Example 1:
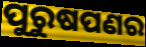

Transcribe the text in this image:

ପୁରୁଷପଣର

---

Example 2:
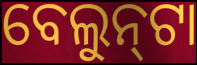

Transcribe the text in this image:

ବେଲୁନ୍‌ଟା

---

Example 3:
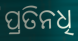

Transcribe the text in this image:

ପ୍ରତିନଧି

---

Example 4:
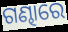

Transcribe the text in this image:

ଗଣ୍ଢାରେ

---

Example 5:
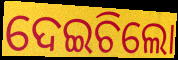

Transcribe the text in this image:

ଦେଇଚିଲୋ